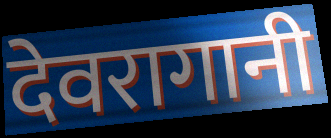
देवरागानी